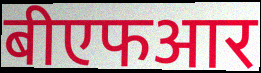
बीएफआर